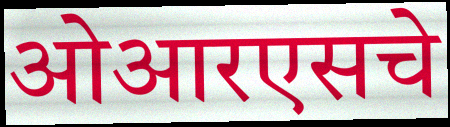
ओआरएसचे